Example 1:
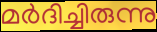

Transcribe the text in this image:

മർദിച്ചിരുന്നു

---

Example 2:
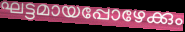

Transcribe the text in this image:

ഘട്ടമായപ്പോഴേക്കും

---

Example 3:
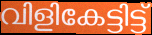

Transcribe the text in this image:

വിളികേട്ടിട്ട്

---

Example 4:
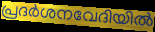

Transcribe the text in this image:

പ്രദർശനവേദിയിൽ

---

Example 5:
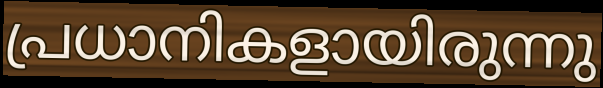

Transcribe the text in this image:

പ്രധാനികളായിരുന്നു